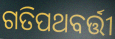
ଗତିପଥବର୍ତ୍ତୀ